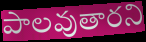
పాలవుతారని